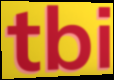
tbi